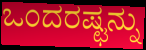
ಒಂದರಷ್ಟನ್ನು